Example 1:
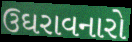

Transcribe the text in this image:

ઉઘરાવનારો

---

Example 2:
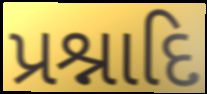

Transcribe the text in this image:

પ્રશ્નાદિ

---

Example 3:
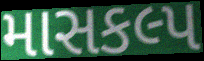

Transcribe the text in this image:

માસકલ્પ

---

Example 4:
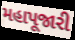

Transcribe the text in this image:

મહાપૂજારી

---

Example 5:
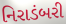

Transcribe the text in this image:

નિરાડંબરી